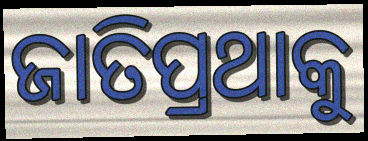
ଜାତିପ୍ରଥାକୁ